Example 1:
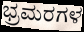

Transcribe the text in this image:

ಭ್ರಮರಗಳ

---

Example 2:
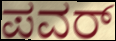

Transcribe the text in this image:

ಪವರ್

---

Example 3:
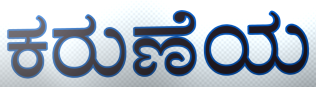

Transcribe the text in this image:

ಕರುಣೆಯ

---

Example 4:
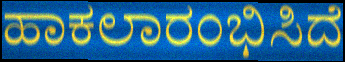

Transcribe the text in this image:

ಹಾಕಲಾರಂಭಿಸಿದೆ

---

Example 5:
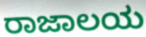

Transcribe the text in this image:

ರಾಜಾಲಯ